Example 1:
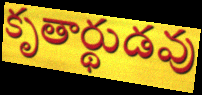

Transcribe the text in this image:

కృతార్థుడవు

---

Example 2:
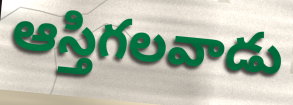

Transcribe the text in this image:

ఆస్తిగలవాడు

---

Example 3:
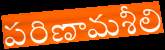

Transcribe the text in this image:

పరిణామశీలి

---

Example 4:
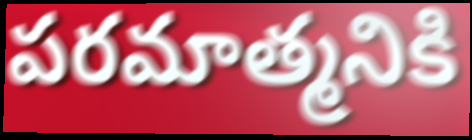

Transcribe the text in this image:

పరమాత్మనికి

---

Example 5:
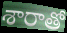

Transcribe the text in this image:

శారాతో